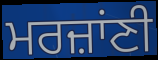
ਮਰਜ਼ਾਂਣੀ